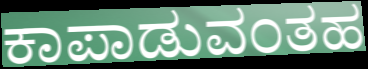
ಕಾಪಾಡುವಂತಹ